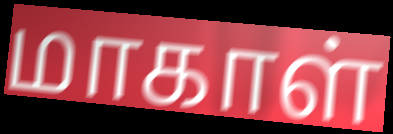
மாகாள்